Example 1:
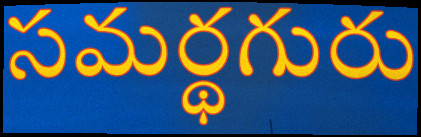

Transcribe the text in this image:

సమర్థగురు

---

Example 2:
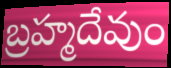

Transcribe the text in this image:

బ్రహ్మదేవుం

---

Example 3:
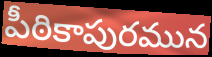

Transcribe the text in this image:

పీఠికాపురమున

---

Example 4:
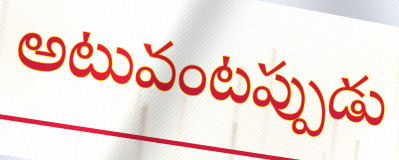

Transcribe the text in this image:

అటువంటప్పుడు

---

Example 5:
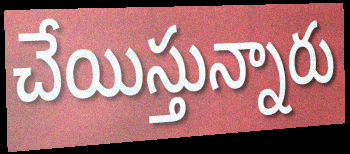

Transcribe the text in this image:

చేయిస్తున్నారు